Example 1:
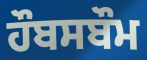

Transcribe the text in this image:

ਹੌਬਸਬੌਮ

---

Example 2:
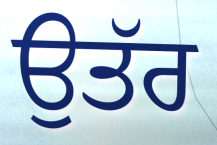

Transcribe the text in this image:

ਉਤੱਰ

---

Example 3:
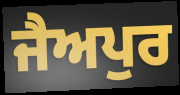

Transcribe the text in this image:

ਜੈਅਪੁਰ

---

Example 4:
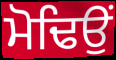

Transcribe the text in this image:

ਮੋਢਿਉਂ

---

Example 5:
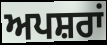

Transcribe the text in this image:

ਅਪਸ਼ਰਾਂ